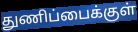
துணிப்பைக்குள்